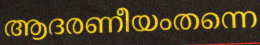
ആദരണീയംതന്നെ